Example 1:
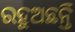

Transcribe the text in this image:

ରହୁଅଛନ୍ତି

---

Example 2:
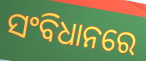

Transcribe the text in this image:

ସଂବିଧାନରେ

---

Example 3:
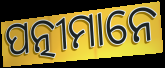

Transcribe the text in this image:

ପତ୍ନୀମାନେ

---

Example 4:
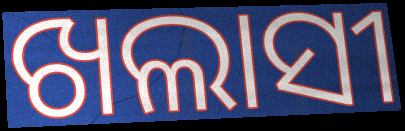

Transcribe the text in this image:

ଖଲାସୀ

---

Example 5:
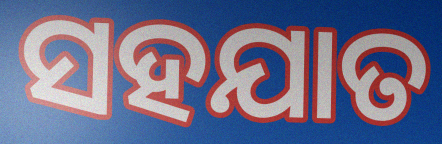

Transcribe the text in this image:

ସହଯାତ